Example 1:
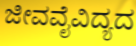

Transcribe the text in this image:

ಜೀವವೈವಿದ್ಯದ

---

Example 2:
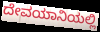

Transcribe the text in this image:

ದೇವಯಾನಿಯಲ್ಲಿ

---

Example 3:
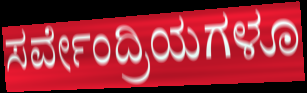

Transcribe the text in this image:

ಸರ್ವೇಂದ್ರಿಯಗಳೂ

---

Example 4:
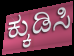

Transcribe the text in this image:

ಕ್ಕುಡಿಸಿ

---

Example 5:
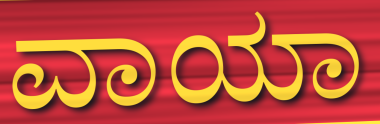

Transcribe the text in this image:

ವಾಯಾ